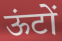
ऊंटों